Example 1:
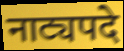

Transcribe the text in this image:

नाट्यपदे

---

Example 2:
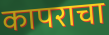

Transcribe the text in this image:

कापराचा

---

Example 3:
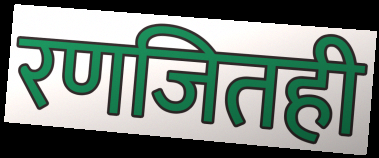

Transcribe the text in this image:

रणजितही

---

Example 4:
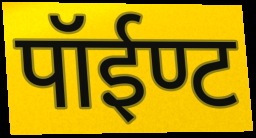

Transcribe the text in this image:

पॉईण्ट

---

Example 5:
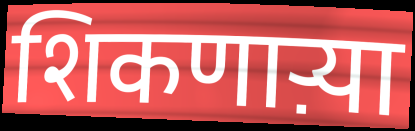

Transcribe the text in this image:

शिकणाऱ्‍या